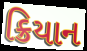
ક્રિયાન